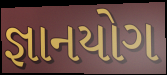
જ્ઞાનયોગ